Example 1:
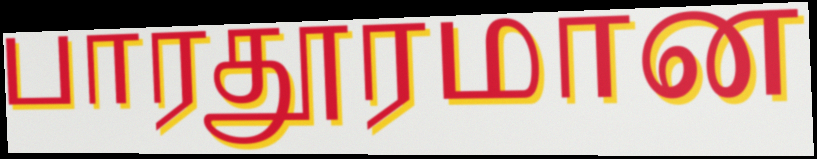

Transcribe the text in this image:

பாரதூரமான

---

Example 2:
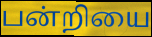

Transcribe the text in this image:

பன்றியை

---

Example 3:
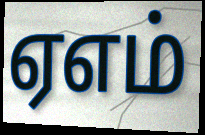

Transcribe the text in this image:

ஏஎம்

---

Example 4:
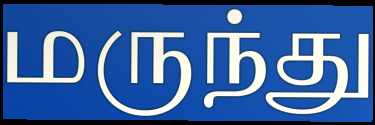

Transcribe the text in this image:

மருந்து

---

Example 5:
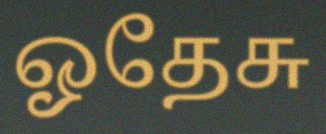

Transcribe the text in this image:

ஓதேசு